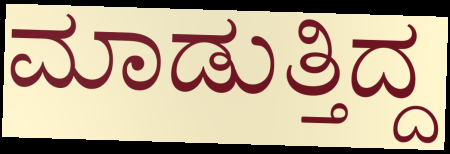
ಮಾಡುತ್ತಿದ್ದ